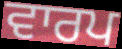
ਵਾਰਪ